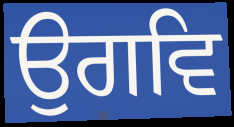
ਉਗਵਿ